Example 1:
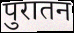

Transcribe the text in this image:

पुरातन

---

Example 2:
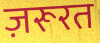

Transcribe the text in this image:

ज़रूरत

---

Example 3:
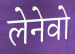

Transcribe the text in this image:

लेनेवो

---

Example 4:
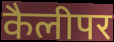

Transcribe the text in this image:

कैलीपर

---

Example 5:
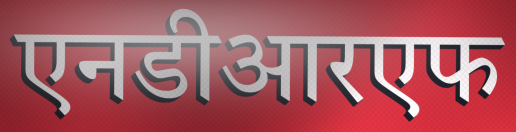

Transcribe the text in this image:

एनडीआरएफ